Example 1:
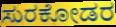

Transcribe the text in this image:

ಸುರಕೋಡರ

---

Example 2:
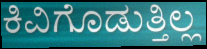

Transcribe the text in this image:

ಕಿವಿಗೊಡುತ್ತಿಲ್ಲ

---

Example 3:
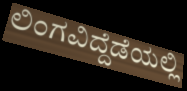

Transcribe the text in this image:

ಲಿಂಗವಿದ್ದೆಡೆಯಲ್ಲಿ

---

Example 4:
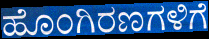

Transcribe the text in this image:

ಹೊಂಗಿರಣಗಳಿಗೆ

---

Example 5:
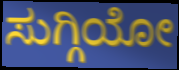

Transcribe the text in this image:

ಸುಗ್ಗಿಯೋ